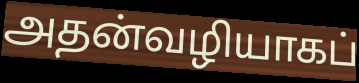
அதன்வழியாகப்